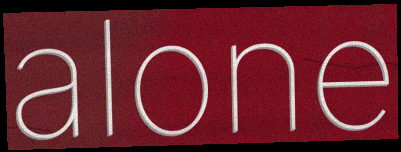
alone